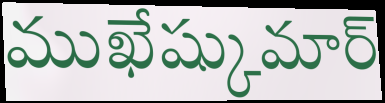
ముఖేష్కుమార్